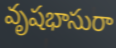
వృషభాసురా